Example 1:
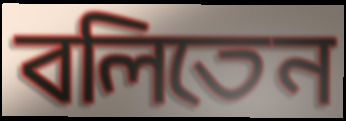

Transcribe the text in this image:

বলিতেন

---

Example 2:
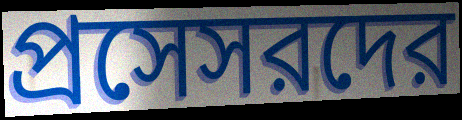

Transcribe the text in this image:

প্রসেসরদের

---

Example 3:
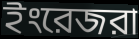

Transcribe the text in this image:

ইংরেজরা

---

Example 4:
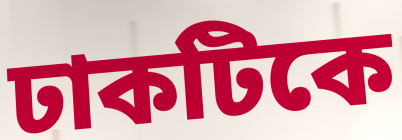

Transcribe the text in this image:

ঢাকটিকে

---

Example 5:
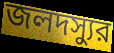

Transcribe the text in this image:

জলদস্যুর